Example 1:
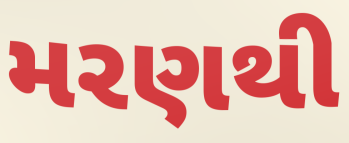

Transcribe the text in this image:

મરણથી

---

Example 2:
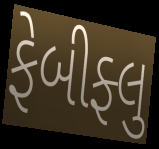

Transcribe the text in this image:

ફેબીફ્લુ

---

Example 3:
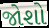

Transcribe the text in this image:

જોશો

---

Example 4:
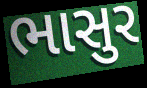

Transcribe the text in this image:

ભાસુર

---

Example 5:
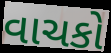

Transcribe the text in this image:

વાચકો